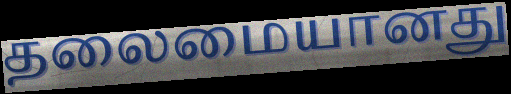
தலைமையானது